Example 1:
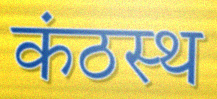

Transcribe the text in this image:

कंठस्थ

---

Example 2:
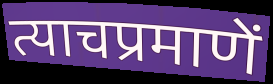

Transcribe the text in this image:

त्याचप्रमाणें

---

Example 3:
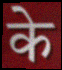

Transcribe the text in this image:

के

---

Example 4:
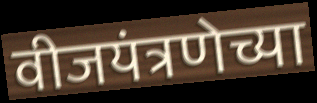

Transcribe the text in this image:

वीजयंत्रणेच्या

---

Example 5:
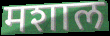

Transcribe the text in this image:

मशाल